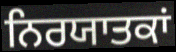
ਨਿਰਯਾਤਕਾਂ